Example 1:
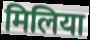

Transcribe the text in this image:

मिलिया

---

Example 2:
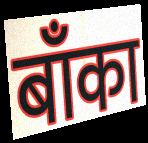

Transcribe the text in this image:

बाँका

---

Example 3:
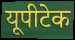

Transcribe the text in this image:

यूपीटेक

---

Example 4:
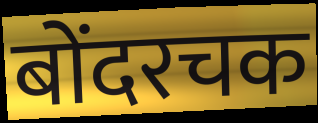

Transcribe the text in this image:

बोंदरचक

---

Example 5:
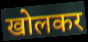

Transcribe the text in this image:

खोलकर